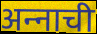
अन्नाची